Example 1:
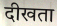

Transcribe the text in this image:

दीखता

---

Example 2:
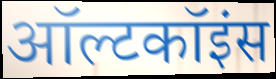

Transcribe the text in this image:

ऑल्टकॉइंस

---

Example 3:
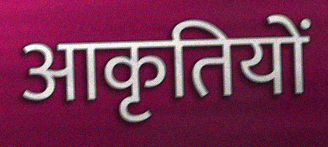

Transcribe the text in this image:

आकृतियों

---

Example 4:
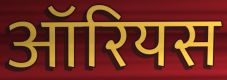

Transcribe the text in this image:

ऑरियस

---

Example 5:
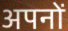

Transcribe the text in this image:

अपनों